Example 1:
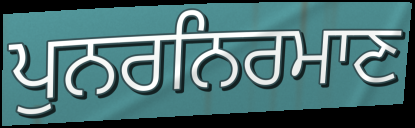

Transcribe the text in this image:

ਪੁਨਰਨਿਰਮਾਣ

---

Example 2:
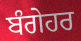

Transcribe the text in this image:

ਬੰਗੇਹਰ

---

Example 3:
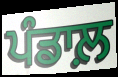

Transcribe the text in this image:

ਪੰਡਾਲ਼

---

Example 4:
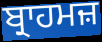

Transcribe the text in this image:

ਬ੍ਰਾਹਮਜ਼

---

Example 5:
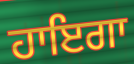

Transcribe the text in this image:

ਹਾਇਗਾ